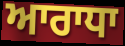
ਆਰਾਧਾ